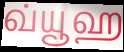
வ்யூஹ